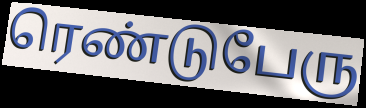
ரெண்டுபேரு